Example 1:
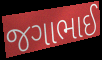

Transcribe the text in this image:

જગાભાઈ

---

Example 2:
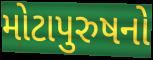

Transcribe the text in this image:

મોટાપુરુષનો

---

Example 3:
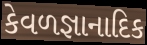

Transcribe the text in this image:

કેવળજ્ઞાનાદિક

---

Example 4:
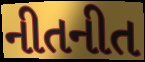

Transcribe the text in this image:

નીતનીત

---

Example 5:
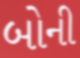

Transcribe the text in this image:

બોની